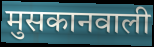
मुसकानवाली